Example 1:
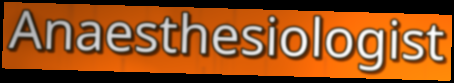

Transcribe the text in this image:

Anaesthesiologist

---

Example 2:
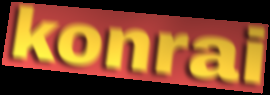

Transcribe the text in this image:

konrai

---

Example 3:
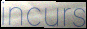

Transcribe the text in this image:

incurs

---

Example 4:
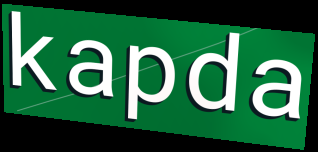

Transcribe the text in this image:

kapda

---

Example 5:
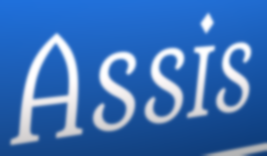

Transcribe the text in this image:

Assis